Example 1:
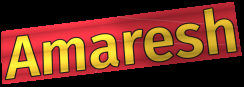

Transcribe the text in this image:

Amaresh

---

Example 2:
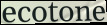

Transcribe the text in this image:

ecotone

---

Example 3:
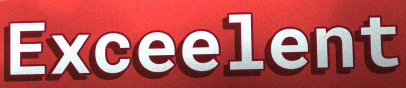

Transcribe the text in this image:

Exceelent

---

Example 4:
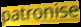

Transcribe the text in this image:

patronise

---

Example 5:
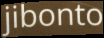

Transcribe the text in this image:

jibonto